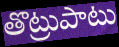
తొట్రుపాటు